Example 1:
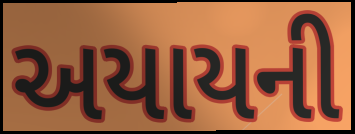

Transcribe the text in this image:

અયાયની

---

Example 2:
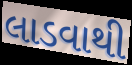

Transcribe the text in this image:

લાડવાથી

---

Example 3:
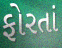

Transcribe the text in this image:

ફોરતાં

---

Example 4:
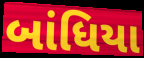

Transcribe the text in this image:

બાંધિયા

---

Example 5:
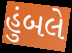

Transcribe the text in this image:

હુંબલે